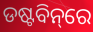
ଡଷ୍ଟବିନ୍‌ରେ